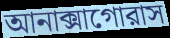
আনাক্সাগোরাস